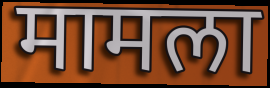
मामला